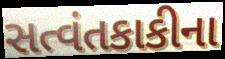
સત્વંતકાકીના